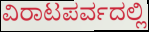
ವಿರಾಟಪರ್ವದಲ್ಲಿ